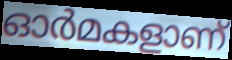
ഓർമകളാണ്